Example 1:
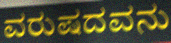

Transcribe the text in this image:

ವರುಷದವನು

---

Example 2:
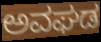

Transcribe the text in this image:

ಅವಘಡ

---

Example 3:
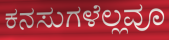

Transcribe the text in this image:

ಕನಸುಗಳೆಲ್ಲವೂ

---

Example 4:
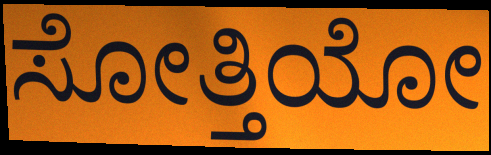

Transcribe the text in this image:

ಸೋತ್ತಿಯೋ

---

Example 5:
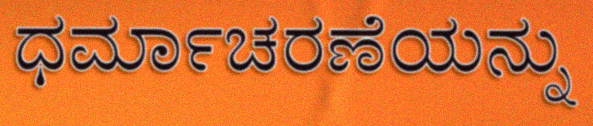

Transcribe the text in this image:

ಧರ್ಮಾಚರಣೆಯನ್ನು